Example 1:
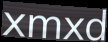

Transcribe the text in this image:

xmxd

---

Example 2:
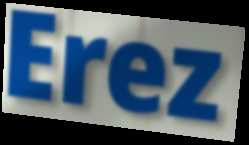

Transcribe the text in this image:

Erez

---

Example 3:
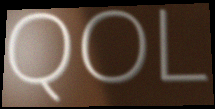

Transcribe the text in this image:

QOL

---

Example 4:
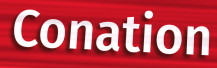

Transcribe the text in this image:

Conation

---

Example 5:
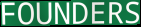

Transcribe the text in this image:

FOUNDERS